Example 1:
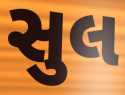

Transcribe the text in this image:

સુલ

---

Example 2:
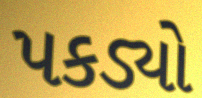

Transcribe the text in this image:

પકડ્યો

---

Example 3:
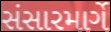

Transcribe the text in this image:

સંસારમાર્ગે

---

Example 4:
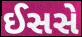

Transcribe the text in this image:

ઈસસે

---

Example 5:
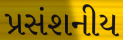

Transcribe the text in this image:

પ્રસંશનીય